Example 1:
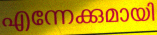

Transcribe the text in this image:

എന്നേക്കുമായി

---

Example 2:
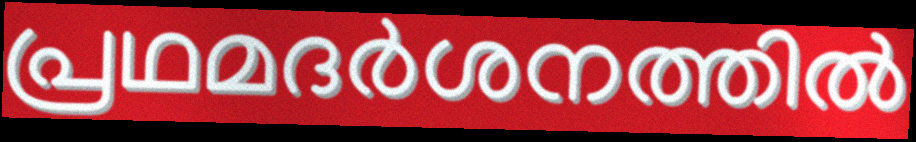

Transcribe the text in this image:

പ്രഥമദർശനത്തിൽ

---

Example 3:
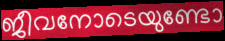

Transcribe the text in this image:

ജീവനോടെയുണ്ടോ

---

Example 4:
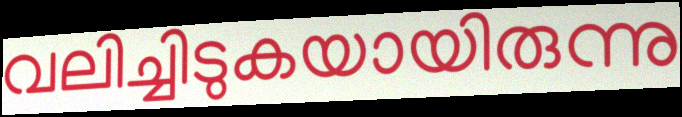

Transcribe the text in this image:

വലിച്ചിടുകയായിരുന്നു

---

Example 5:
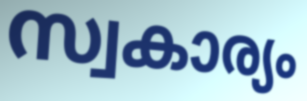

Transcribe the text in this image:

സ്വകാര്യം